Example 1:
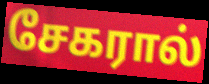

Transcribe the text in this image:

சேகரால்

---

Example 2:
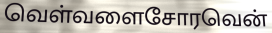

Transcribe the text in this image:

வெள்வளைசோரவென்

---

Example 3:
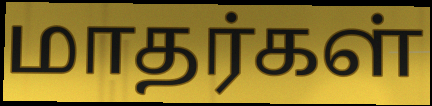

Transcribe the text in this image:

மாதர்கள்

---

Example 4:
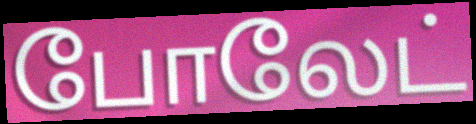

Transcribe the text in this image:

போலேட்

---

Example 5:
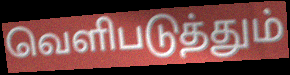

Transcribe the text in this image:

வெளிபடுத்தும்